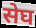
सेघ